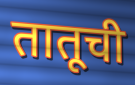
तातूची